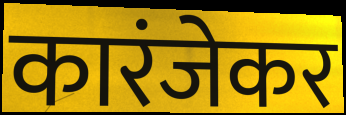
कारंजेकर